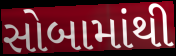
સોબામાંથી